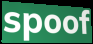
spoof